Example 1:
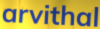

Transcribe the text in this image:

arvithal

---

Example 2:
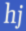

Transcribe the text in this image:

hj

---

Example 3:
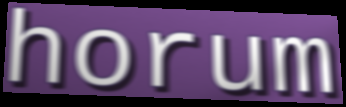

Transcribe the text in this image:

horum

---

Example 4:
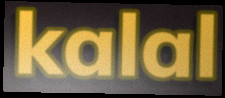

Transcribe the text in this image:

kalal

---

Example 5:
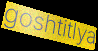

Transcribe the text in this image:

goshtitlya